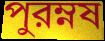
পুরম্নষ